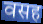
वसह